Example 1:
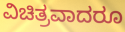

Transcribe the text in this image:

ವಿಚಿತ್ರವಾದರೂ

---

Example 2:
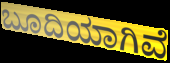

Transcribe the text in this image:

ಬೂದಿಯಾಗಿವೆ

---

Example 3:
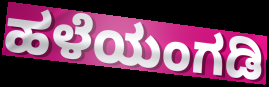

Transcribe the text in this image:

ಹಳೆಯಂಗಡಿ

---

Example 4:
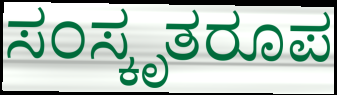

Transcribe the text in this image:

ಸಂಸ್ಕೃತರೂಪ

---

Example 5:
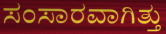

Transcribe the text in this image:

ಸಂಸಾರವಾಗಿತ್ತು